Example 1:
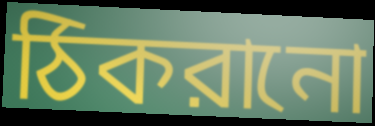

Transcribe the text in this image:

ঠিকরানো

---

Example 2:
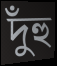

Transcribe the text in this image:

দুঁহু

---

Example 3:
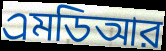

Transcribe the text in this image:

এমডিআর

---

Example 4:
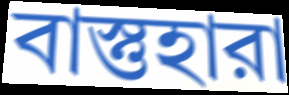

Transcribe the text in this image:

বাস্তুহারা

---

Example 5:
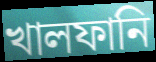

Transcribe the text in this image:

খালফানি